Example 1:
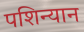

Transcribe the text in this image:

पशिन्यान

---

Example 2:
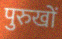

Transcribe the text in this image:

पुरुखों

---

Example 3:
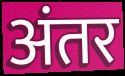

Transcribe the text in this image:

अंतर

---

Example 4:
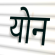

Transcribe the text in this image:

योन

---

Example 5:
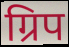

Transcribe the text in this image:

ग्रिप